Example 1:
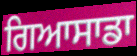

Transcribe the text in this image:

ਗਿਆਸਾਡਾ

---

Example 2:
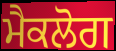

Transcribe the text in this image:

ਮੈਕਲੋਗ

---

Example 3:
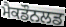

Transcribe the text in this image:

ਮੈਕਡੌਨਲਡ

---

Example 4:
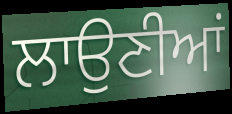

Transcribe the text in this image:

ਲਾਉਣੀਆਂ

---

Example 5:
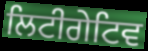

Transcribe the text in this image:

ਲਿਟੀਗੇਟਿਵ